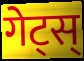
गेट्स्